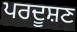
ਪਰਦੂਸ਼ਣ